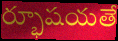
ర్భూషయతే